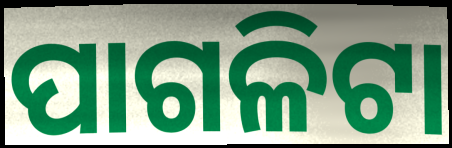
ପାଗଳିଟା